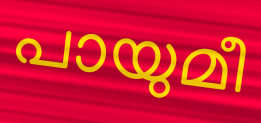
പായുമീ